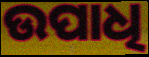
ଉପାଧି